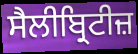
ਸੈਲੀਬ੍ਰਿਟੀਜ਼